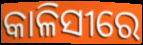
କାଳିସୀରେ